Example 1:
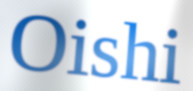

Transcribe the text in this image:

Oishi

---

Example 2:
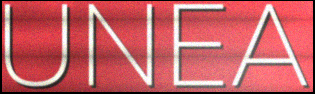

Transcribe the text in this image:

UNEA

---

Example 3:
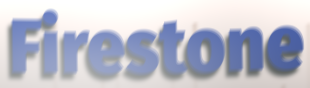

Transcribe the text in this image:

Firestone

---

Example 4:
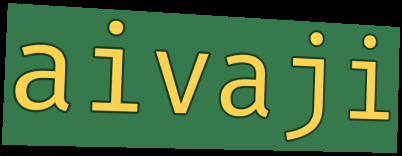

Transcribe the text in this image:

aivaji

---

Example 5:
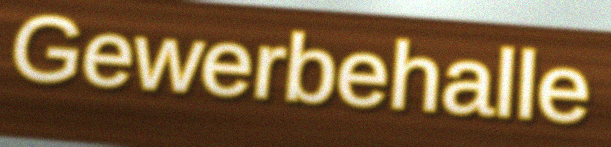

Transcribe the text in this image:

Gewerbehalle